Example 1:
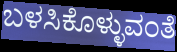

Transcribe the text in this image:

ಬಳಸಿಕೊಳ್ಳುವಂತೆ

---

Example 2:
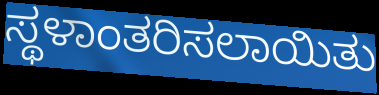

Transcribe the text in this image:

ಸ್ಥಳಾಂತರಿಸಲಾಯಿತು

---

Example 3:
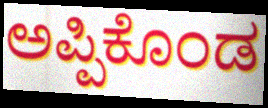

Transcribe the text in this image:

ಅಪ್ಪಿಕೊಂಡ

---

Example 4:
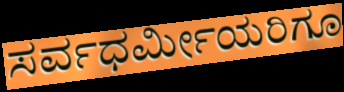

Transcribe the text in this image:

ಸರ್ವಧರ್ಮೀಯರಿಗೂ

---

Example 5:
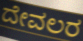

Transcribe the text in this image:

ದೇವಲರ